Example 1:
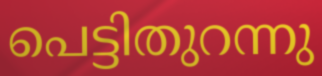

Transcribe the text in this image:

പെട്ടിതുറന്നു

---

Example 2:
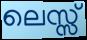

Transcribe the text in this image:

ലെസ്സ്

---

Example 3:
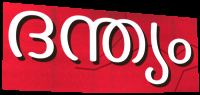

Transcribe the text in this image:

ദന്ത്യം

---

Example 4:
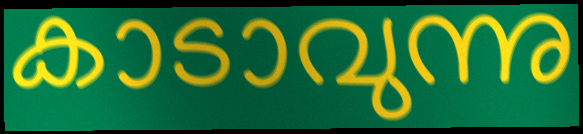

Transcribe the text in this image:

കാടാവുന്നു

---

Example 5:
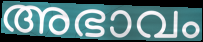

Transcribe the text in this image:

അഭാവം